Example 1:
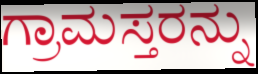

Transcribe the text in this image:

ಗ್ರಾಮಸ್ತರನ್ನು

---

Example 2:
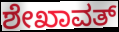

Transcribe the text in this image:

ಶೇಖಾವತ್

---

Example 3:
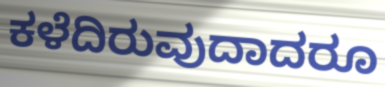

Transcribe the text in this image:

ಕಳೆದಿರುವುದಾದರೂ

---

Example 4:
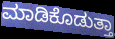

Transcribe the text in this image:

ಮಾಡಿಕೊಡುತ್ತಾ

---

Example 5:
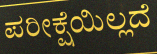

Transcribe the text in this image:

ಪರೀಕ್ಷೆಯಿಲ್ಲದೆ